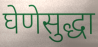
घेणेसुद्धा